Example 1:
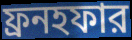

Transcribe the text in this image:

ফ্রনহফার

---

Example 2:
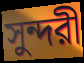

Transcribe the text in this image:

সুন্দরী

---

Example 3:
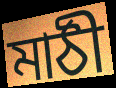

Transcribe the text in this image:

মাঠী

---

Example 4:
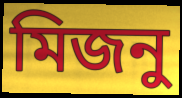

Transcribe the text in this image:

মিজনু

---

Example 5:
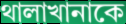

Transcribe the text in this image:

থালাখানাকে